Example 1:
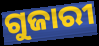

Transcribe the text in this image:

ଗୁଜାରୀ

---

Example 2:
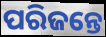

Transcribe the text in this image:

ପରିଜନ୍ତେ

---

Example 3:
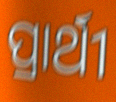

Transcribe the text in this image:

ପ୍ରାର୍ଥୀ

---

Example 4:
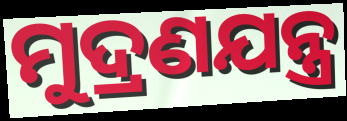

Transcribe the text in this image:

ମୁଦ୍ରଣଯନ୍ତ୍ର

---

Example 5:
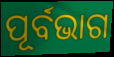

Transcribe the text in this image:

ପୂର୍ବଭାଗ